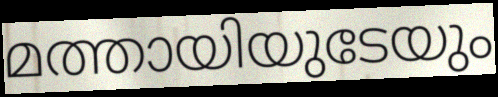
മത്തായിയുടേയും